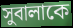
সুবালাকে